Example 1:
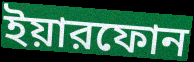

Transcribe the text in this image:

ইয়ারফোন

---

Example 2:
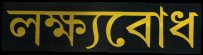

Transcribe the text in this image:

লক্ষ্যবোধ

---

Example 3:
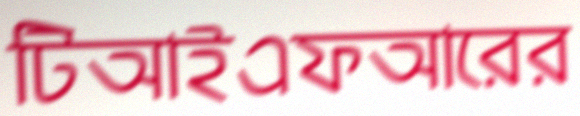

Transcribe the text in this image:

টিআইএফআরের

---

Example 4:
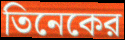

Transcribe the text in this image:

তিনেকের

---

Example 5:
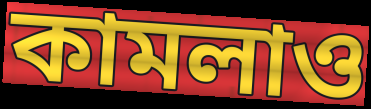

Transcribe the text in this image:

কামলাও